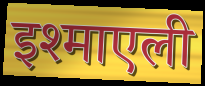
इश्माएली